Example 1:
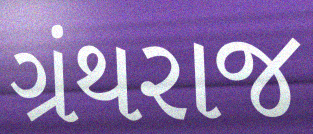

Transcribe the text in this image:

ગ્રંથરાજ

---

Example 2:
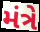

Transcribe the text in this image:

મંત્રે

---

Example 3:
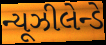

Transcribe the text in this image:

ન્યૂઝીલેન્ડે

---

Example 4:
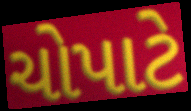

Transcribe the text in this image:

ચોપાટે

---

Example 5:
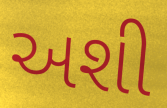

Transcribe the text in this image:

અશી